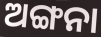
ଅଙ୍ଗନା